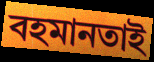
বহমানতাই